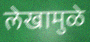
लेखामुळे